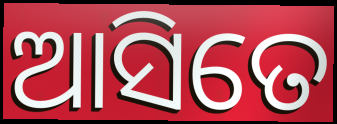
ଆସିତେ